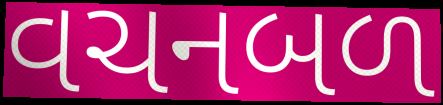
વચનબળ